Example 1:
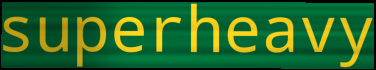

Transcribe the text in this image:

superheavy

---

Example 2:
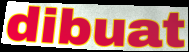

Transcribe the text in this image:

dibuat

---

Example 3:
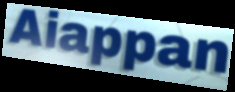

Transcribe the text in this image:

Aiappan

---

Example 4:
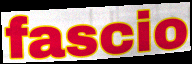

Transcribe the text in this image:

fascio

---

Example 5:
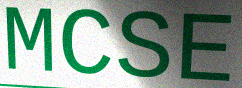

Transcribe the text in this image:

MCSE